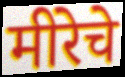
मीरेचे